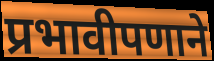
प्रभावीपणाने